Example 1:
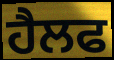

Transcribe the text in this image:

ਹੈਲਫ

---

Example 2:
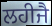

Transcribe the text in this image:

ਲਹੀਜੈ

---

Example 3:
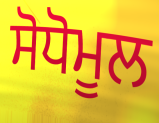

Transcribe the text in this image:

ਸੋਧੋਮੂਲ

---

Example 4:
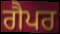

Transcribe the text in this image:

ਗੈਪਰ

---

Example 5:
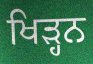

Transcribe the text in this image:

ਖਿੜ੍ਹਨ